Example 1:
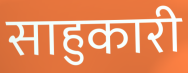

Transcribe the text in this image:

साहुकारी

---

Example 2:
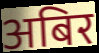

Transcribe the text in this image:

अबिर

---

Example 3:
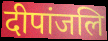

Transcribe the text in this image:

दीपांजलि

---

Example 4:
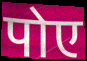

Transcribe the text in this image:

पोए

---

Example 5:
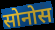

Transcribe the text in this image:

सोनोस